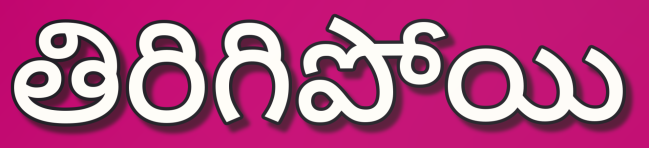
తిరిగిపోయి